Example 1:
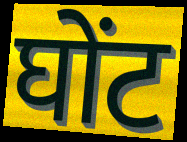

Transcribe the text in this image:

घोंट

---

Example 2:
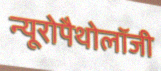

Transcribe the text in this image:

न्यूरोपैथोलॉजी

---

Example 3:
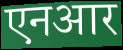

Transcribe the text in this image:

एनआर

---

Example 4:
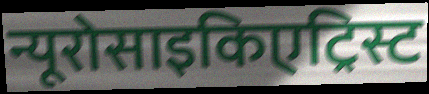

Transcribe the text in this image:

न्यूरोसाइकिएट्रिस्ट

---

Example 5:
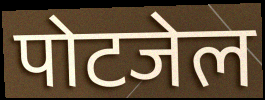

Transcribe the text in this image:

पोटजेल